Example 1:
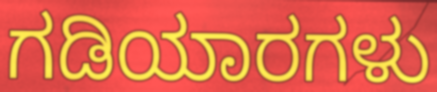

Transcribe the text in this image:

ಗಡಿಯಾರಗಳು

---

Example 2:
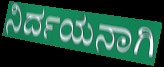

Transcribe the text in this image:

ನಿರ್ದಯನಾಗಿ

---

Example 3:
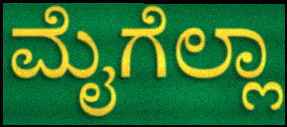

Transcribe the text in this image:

ಮೈಗೆಲ್ಲಾ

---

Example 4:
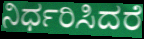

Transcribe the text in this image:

ನಿರ್ಧರಿಸಿದರೆ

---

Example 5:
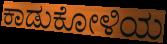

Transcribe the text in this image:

ಕಾಡುಕೋಳಿಯ